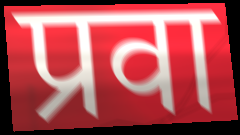
प्रवा